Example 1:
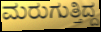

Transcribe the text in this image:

ಮರುಗುತ್ತಿದ್ದ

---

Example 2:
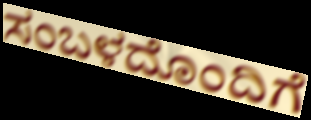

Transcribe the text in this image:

ಸಂಬಳದೊಂದಿಗೆ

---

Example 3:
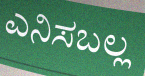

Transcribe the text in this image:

ಎನಿಸಬಲ್ಲ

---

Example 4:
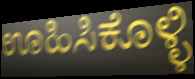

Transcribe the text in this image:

ಊಹಿಸಿಕೊಳ್ಳಿ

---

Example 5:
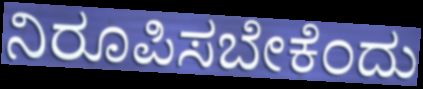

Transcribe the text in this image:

ನಿರೂಪಿಸಬೇಕೆಂದು